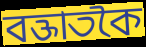
বক্তাতকৈ